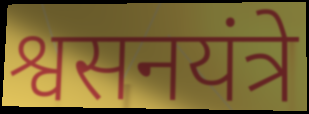
श्वसनयंत्रे